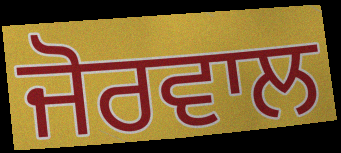
ਜੋਰਵਾਲ